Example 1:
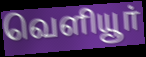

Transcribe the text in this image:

வெளியூர்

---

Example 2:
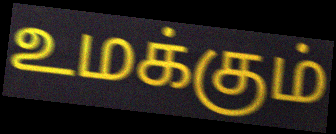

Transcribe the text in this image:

உமக்கும்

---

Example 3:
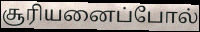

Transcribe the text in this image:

சூரியனைப்போல்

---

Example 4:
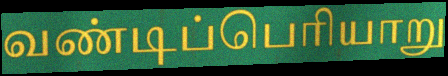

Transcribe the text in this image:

வண்டிப்பெரியாறு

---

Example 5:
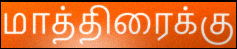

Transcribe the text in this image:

மாத்திரைக்கு